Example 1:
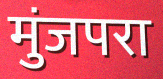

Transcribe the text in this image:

मुंजपरा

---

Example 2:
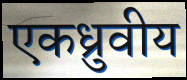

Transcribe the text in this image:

एकध्रुवीय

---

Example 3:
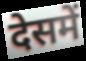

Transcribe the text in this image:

देसमें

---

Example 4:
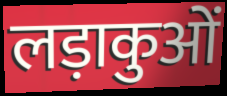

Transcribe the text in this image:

लड़ाकुओं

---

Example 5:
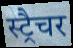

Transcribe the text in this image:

स्ट्रैचर